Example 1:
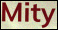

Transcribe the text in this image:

Mity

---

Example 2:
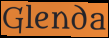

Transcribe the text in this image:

Glenda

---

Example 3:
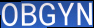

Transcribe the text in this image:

OBGYN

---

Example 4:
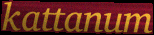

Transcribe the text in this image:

kattanum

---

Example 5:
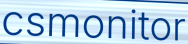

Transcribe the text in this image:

csmonitor